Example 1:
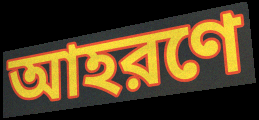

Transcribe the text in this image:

আহরণে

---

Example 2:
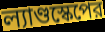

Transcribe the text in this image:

ল্যাণ্ডস্কেপের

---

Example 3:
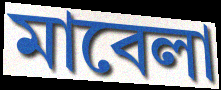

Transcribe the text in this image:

মাবেলা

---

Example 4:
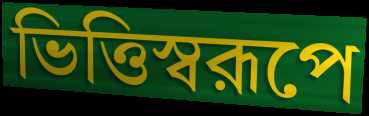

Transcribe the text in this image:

ভিত্তিস্বরূপে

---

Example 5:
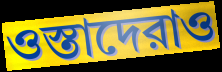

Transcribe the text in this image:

ওস্তাদেরাও